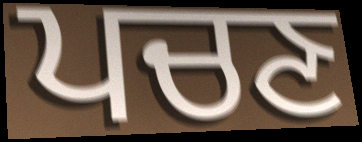
ਪਚਣ